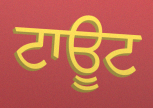
ਟਾਊਟ